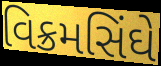
વિક્રમસિંઘે